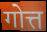
गोत्त